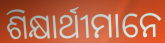
ଶିକ୍ଷାର୍ଥୀମାନେ